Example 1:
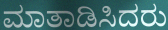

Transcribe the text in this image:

ಮಾತಾಡಿಸಿದರು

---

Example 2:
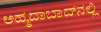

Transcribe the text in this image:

ಅಹ್ಮದಾಬಾದ್‍ನಲ್ಲಿ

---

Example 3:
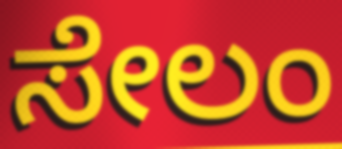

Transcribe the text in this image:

ಸೇಲಂ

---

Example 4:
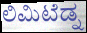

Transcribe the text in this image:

ಲಿಮಿಟೆಡ್ನ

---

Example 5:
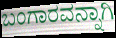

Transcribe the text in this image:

ಬಂಗಾರವನ್ನಾಗಿ